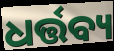
ଧର୍ତ୍ତବ୍ୟ